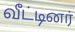
வீட்டினர்